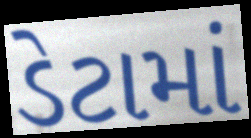
ડેટામાં